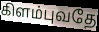
கிளம்புவதே